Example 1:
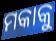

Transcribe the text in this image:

ମକାକୁ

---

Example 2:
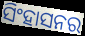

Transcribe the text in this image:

ସିଂହାସନର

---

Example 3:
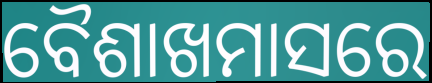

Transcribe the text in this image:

ବୈଶାଖମାସରେ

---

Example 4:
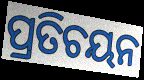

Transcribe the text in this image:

ପ୍ରତିଚୟନ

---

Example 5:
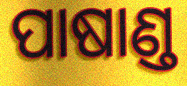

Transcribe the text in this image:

ପାଷାଣ୍ଡ